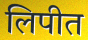
लिपीत